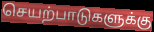
செயற்பாடுகளுக்கு